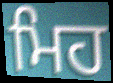
ਮਿਹ